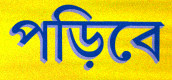
পড়িবে